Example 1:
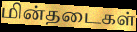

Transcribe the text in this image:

மின்தடைகள்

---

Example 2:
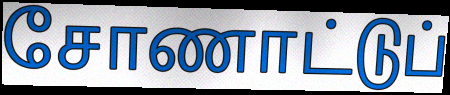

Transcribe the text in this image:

சோணாட்டுப்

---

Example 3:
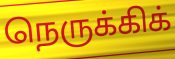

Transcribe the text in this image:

நெருக்கிக்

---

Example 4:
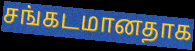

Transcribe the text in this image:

சங்கடமானதாக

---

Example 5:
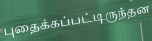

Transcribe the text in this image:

புதைக்கப்பட்டிருந்தன